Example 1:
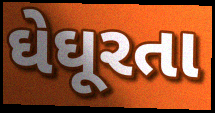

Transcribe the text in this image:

ઘેઘૂરતા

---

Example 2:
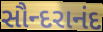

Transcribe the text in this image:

સૌન્દરાનંદ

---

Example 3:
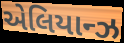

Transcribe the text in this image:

એલિયાન્ઝ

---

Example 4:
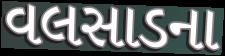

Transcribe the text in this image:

વલસાડના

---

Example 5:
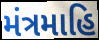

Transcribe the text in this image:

મંત્રમાહિ